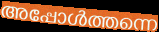
അപ്പോൾത്തന്നെ